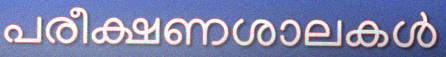
പരീക്ഷണശാലകൾ